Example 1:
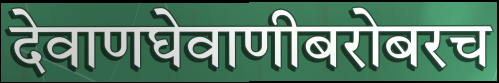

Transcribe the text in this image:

देवाणघेवाणीबरोबरच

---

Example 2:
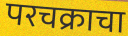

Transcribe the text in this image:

परचक्राचा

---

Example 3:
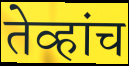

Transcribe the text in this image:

तेव्हांच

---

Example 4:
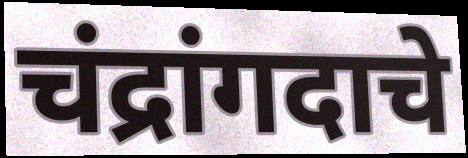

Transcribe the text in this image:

चंद्रांगदाचे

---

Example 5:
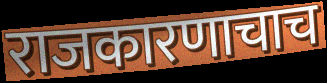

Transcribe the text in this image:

राजकारणाचाच